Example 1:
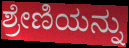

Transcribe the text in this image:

ಶ್ರೇಣಿಯನ್ನು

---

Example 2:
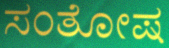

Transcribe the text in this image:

ಸಂತೋಷ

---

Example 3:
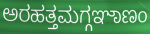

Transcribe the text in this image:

ಅರಹತ್ತಮಗ್ಗಞಾಣಂ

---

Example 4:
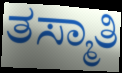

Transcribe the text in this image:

ತಸ್ಮಾತಿ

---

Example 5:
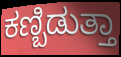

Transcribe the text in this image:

ಕಣ್ಬಿಡುತ್ತಾ